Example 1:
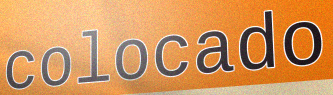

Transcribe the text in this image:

colocado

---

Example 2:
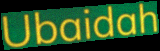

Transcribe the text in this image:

Ubaidah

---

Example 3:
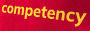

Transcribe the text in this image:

competency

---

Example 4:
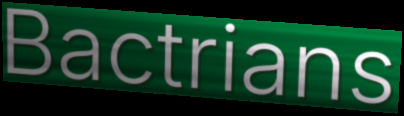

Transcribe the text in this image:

Bactrians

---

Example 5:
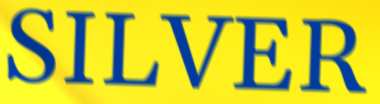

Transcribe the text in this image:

SILVER